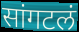
सांगटलं